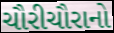
ચૌરીચૌરાનો